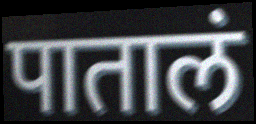
पातालं